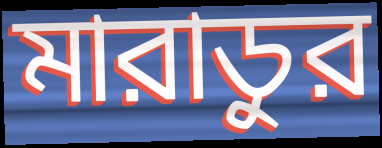
মারাডুর